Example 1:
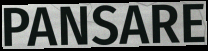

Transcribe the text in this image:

PANSARE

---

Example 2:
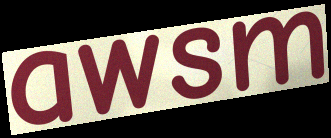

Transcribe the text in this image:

awsm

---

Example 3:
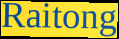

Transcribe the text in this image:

Raitong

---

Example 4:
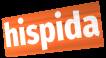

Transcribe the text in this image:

hispida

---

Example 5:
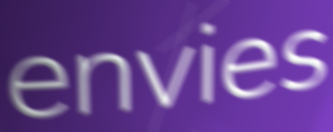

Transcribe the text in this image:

envies